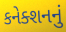
કનેક્શનનું